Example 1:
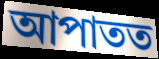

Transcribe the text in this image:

আপাতত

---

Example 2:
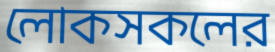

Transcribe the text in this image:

লোকসকলের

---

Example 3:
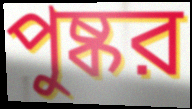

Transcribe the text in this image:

পুষ্কর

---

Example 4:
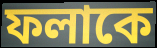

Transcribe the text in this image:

ফলাকে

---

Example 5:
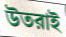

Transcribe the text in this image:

উতরাই